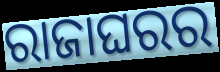
ରାଜାଘରର